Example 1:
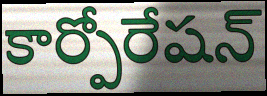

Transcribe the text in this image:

కార్పోరేషన్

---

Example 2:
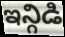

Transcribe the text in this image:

ఇన్గిడి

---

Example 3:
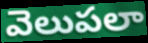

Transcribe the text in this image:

వెలుపలా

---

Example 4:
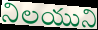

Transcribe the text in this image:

నిలయుని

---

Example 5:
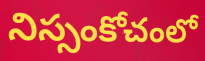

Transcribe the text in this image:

నిస్సంకోచంలో